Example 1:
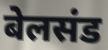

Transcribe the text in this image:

बेलसंड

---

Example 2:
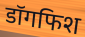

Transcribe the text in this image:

डॉगफिश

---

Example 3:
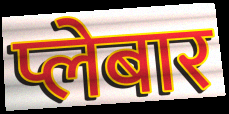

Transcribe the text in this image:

प्लेबार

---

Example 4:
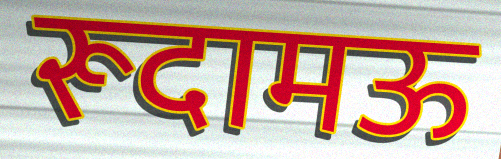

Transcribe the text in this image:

रूदामऊ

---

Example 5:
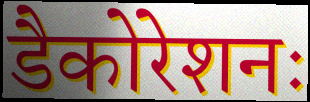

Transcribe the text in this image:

डैकोरेशनः